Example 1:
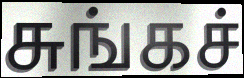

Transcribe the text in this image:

சுங்கச்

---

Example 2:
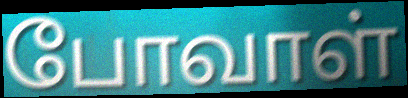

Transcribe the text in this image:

போவாள்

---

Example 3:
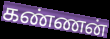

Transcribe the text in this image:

கண்ணன்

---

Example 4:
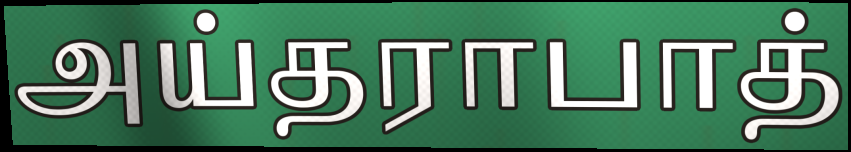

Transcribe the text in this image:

அய்தராபாத்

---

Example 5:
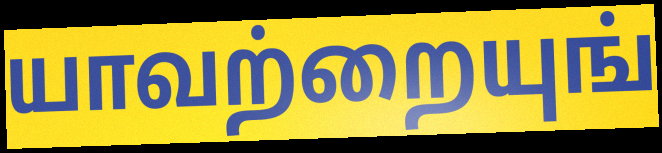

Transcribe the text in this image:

யாவற்றையுங்